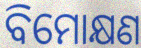
ବିମୋକ୍ଷଣ